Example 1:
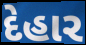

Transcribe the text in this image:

દેહાર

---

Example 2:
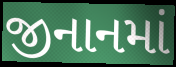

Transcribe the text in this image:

જીનાનમાં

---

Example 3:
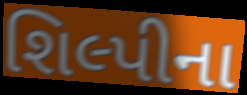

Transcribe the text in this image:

શિલ્પીના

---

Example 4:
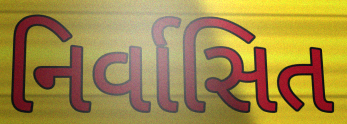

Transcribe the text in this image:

નિર્વાસિત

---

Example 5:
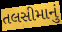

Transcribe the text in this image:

તલસીમાનું